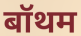
बॉथम